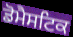
ਡੋਮੈਸਟਿਕ